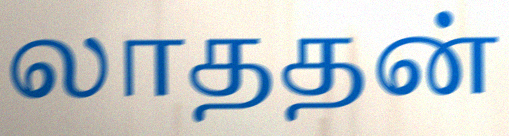
லாததன்